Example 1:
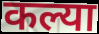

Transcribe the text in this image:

कल्या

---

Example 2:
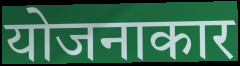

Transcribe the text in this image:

योजनाकार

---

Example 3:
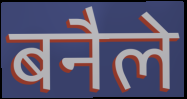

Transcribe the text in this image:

बनैले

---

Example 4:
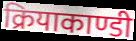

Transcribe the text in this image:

क्रियाकाण्डी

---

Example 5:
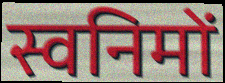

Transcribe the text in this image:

स्वनिमों